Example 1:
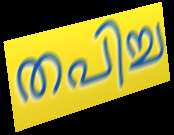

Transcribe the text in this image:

തപിച്ച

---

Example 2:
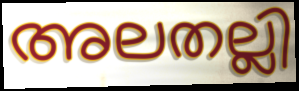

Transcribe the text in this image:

അലതല്ലി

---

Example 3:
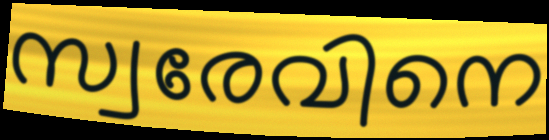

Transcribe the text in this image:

സ്വരേവിനെ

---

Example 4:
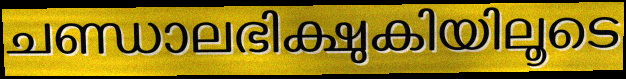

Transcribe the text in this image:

ചണ്ഡാലഭിക്ഷുകിയിലൂടെ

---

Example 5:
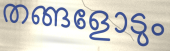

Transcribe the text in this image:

തങ്ങളോടും